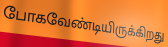
போகவேண்டியிருக்கிறது